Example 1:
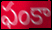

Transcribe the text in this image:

ఫంకా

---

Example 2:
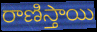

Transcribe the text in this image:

రాణిస్తాయి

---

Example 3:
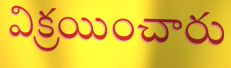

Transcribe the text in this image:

విక్రయించారు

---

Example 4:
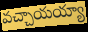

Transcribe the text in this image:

వచ్చాయయ్యా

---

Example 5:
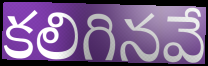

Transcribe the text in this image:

కలిగినవే